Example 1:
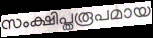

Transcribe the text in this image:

സംക്ഷിപ്തരൂപമായ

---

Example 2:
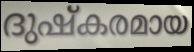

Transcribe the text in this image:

ദുഷ്കരമായ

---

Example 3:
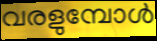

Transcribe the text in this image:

വരളുമ്പോൾ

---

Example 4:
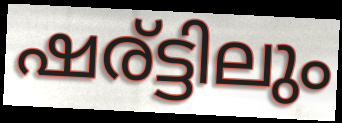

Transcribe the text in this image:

ഷര്ട്ടിലും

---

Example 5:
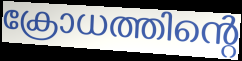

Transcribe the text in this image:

ക്രോധത്തിന്റെ